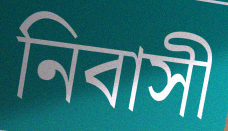
নিবাসী